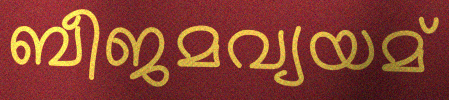
ബീജമവ്യയമ്